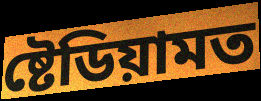
ষ্টেডিয়ামত